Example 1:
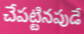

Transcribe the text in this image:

చేపట్టినపుడే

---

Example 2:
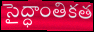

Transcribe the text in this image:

సైద్ధాంతికత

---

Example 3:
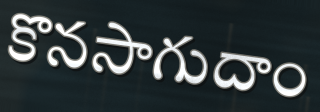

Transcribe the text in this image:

కొనసాగుదాం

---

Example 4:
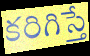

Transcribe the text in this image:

కరిగిస్తే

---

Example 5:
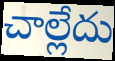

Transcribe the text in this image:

చాల్లేదు